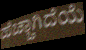
ಹೆಚ್ಚಾಗಿದೆಯೆ